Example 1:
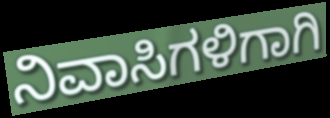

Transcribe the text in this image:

ನಿವಾಸಿಗಳಿಗಾಗಿ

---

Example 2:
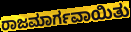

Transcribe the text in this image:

ರಾಜಮಾರ್ಗವಾಯಿತು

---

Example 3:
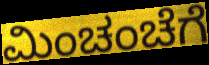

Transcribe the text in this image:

ಮಿಂಚಂಚೆಗೆ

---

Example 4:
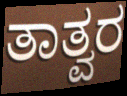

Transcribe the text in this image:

ತಾತ್ವರ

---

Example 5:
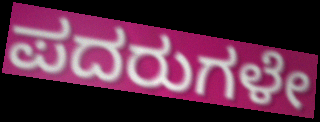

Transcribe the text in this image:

ಪದರುಗಳೇ